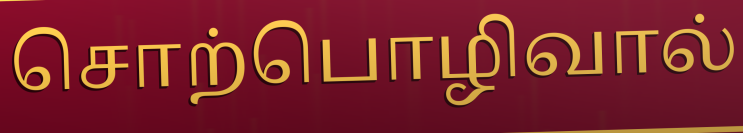
சொற்பொழிவால்